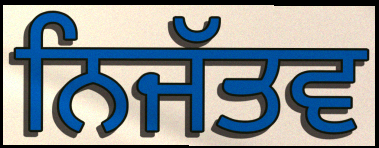
ਨਿਜੱਤਵ